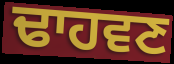
ਢਾਹਵਣ